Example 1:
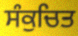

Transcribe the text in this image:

ਸੰਕੁਚਿਤ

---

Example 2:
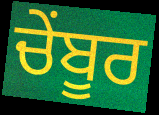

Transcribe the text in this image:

ਚੇਂਬੂਰ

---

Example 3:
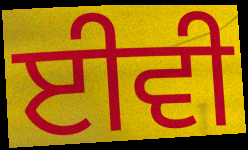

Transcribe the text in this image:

ਈਵੀ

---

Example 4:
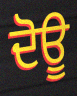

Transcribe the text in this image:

ਦੋਊ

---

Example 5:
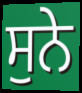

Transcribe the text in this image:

ਸੁਨੇ